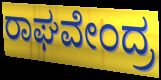
ರಾಘವೇಂದ್ರ